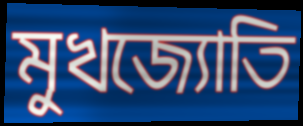
মুখজ্যোতি